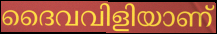
ദൈവവിളിയാണ്